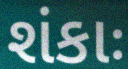
શંકાઃ